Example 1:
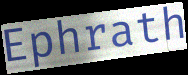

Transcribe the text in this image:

Ephrath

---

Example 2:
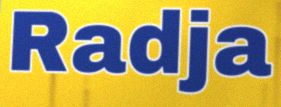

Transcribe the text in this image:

Radja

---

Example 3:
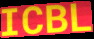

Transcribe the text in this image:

ICBL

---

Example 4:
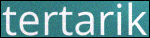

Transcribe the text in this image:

tertarik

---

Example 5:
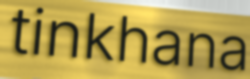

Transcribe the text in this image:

tinkhana